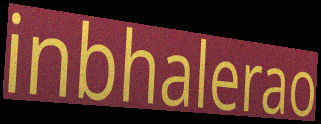
inbhalerao